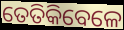
ତେତିକିବେଳେ